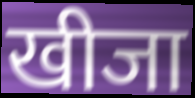
खीजा